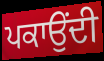
ਪਕਾਉਂਦੀ